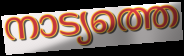
നാട്യത്തെ